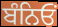
ਬੰਨਿਓਂ